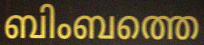
ബിംബത്തെ